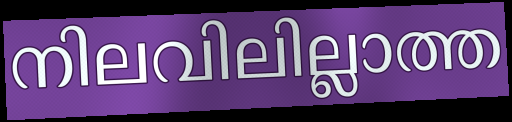
നിലവിലില്ലാത്ത